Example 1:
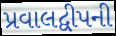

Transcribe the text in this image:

પ્રવાલદ્વીપની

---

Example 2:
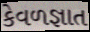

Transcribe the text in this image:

કેવળજ્ઞાત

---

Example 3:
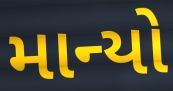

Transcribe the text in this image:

માન્યો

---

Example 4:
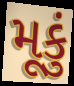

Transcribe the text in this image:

મૂકું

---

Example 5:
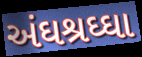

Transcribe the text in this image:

અંઘશ્રઘ્ઘા